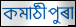
কমাঠীপুৰা